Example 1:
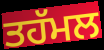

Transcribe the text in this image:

ਤਹੱਮਲ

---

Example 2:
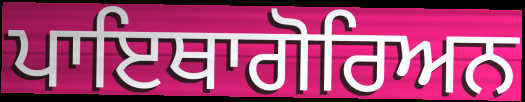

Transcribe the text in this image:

ਪਾਇਥਾਗੋਰਿਅਨ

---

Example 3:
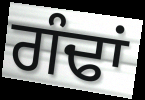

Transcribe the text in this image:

ਗੰਢਾਂ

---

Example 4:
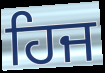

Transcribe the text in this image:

ਹਿਜ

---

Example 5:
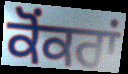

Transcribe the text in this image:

ਕੋਂਕਰਾਂ